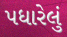
પધારેલું